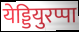
येड्डियुरप्पा